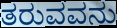
ತರುವವನು